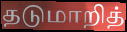
தடுமாறித்